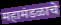
महामंडळाचे